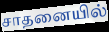
சாதனையில்